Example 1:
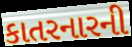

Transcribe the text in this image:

કાતરનારની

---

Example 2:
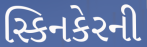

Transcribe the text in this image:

સ્કિનકેરની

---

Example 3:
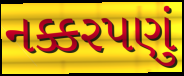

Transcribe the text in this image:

નક્કરપણું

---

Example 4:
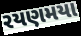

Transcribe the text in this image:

રયણમયા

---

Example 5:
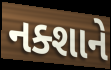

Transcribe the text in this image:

નક્શાને